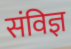
संविज्ञ